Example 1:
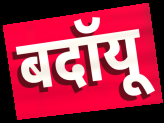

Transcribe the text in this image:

बदॉयू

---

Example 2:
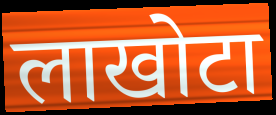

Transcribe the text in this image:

लाखोटा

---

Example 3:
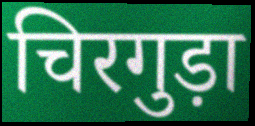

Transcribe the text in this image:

चिरगुड़ा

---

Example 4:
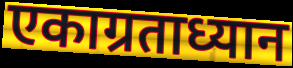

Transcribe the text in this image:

एकाग्रताध्यान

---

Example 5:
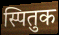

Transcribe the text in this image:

स्पितुक